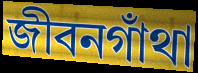
জীবনগাঁথা